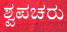
ಶ್ವಪಚರು